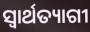
ସ୍ୱାର୍ଥତ୍ୟାଗୀ